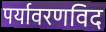
पर्यावरणविद